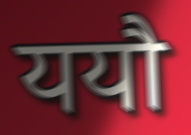
ययौ